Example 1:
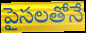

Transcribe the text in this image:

పైసలతోనే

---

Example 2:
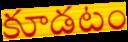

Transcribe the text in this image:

కూడటం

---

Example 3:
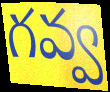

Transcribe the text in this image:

గవ్వ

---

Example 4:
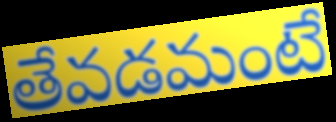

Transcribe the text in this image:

తేవడమంటే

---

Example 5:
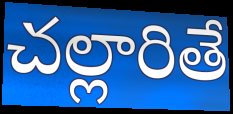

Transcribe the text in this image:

చల్లారితే